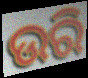
ଉରି